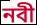
নবী